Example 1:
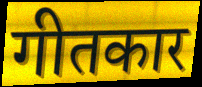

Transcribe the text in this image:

गीतकार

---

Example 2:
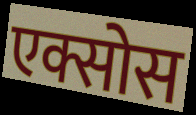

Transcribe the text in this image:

एक्सोस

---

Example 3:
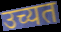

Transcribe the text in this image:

उच्यत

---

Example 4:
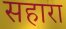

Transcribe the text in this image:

सहारा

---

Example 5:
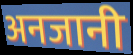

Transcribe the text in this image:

अनजानी